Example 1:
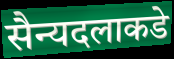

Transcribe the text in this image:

सैन्यदलाकडे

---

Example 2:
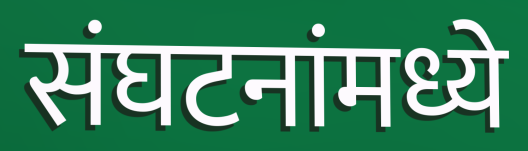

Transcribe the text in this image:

संघटनांमध्ये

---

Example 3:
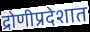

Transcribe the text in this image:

द्रोणीप्रदेशात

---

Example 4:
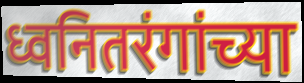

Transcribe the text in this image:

ध्वनितरंगांच्या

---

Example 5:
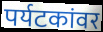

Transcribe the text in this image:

पर्यटकांवर